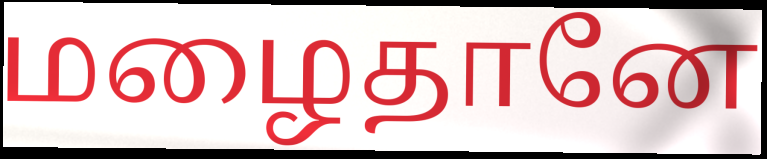
மழைதானே